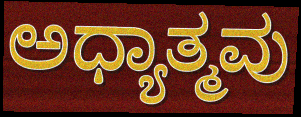
ಅಧ್ಯಾತ್ಮವು